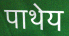
पाथेय